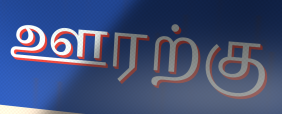
ஊரற்கு